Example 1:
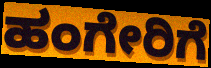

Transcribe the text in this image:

ಹಂಗೇರಿಗೆ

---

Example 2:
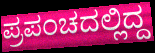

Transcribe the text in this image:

ಪ್ರಪಂಚದಲ್ಲಿದ್ದ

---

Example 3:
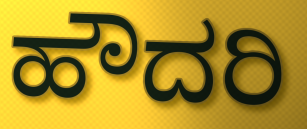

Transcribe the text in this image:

ಹೌದರಿ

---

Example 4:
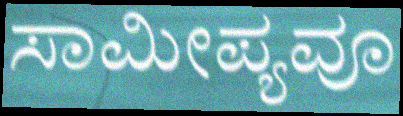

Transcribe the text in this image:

ಸಾಮೀಪ್ಯವೂ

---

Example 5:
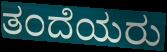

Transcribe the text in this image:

ತಂದೆಯರು